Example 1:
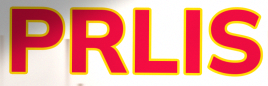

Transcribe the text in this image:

PRLIS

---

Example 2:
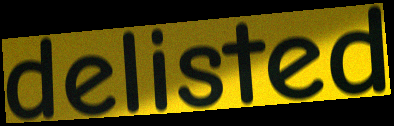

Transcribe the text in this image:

delisted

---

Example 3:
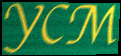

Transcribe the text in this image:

YCM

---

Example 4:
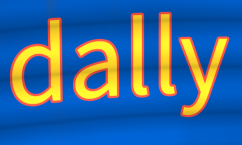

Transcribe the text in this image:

dally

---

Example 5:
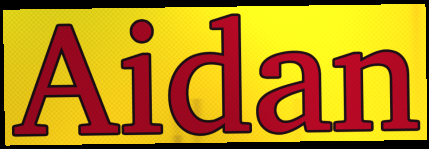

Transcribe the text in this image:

Aidan